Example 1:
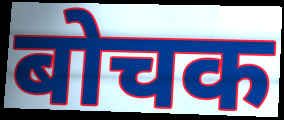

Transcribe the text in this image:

बोचक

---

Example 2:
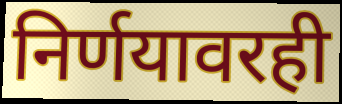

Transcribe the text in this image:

निर्णयावरही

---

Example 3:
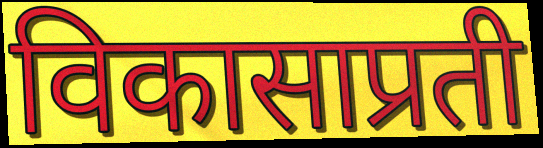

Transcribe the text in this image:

विकासाप्रती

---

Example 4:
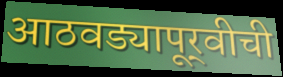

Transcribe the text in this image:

आठवड्यापूर्वीची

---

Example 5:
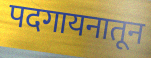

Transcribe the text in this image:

पदगायनातून